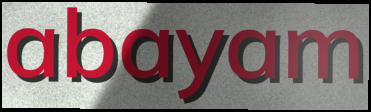
abayam